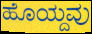
ಹೊಯ್ದವು